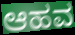
ಆಹವ